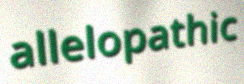
allelopathic